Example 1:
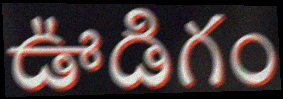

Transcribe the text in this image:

ఊడిగం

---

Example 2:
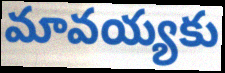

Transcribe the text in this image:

మావయ్యకు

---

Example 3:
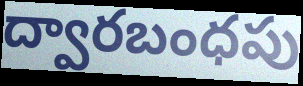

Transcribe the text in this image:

ద్వారబంధపు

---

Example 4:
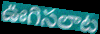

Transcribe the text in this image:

ఊగిసలాట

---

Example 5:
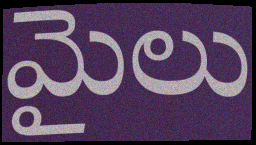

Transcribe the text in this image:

మైలు